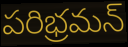
పరిభ్రమన్